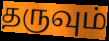
தருவும்